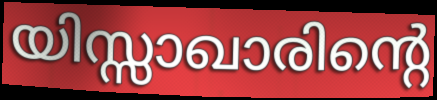
യിസ്സാഖാരിന്റെ